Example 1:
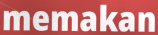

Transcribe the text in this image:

memakan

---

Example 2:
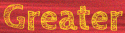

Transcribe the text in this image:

Greater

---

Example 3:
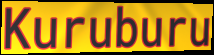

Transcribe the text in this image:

Kuruburu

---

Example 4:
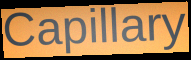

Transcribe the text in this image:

Capillary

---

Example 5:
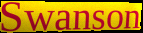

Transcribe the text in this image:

Swanson